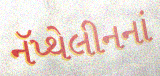
નૅપ્થેલીનનાં